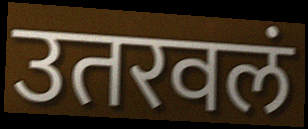
उतरवलं